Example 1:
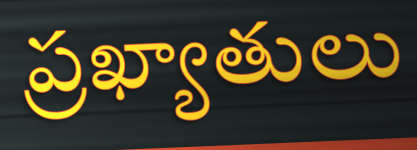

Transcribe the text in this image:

ప్రఖ్యాతులు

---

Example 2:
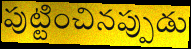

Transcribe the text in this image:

పుట్టించినప్పుడు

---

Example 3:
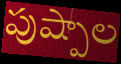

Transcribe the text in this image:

పుష్పాల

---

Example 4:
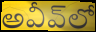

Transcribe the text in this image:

అవీవ్‌లో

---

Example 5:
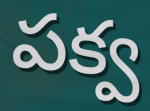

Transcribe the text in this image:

పక్వ